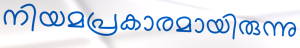
നിയമപ്രകാരമായിരുന്നു